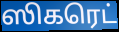
ஸிகரெட்